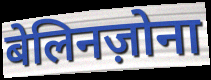
बेलिनज़ोना